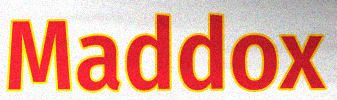
Maddox